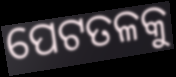
ପେଟତଳକୁ